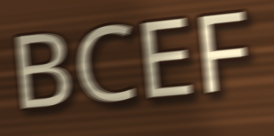
BCEF